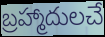
బ్రహ్మాదులచే